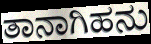
ತಾನಾಗಿಹನು